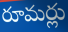
రూమర్లు